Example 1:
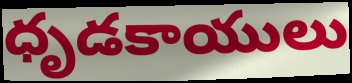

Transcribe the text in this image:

ధృడకాయులు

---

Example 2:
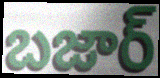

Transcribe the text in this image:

బజార్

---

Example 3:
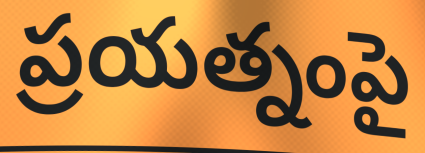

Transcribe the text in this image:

ప్రయత్నంపై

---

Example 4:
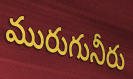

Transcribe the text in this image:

మురుగునీరు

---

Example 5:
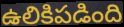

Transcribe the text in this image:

ఉలికిపడింది